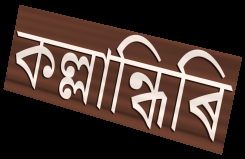
কল্লান্ধিৰি